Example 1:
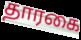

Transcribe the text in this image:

தாரகை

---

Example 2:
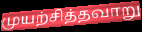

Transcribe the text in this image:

முயற்சித்தவாறு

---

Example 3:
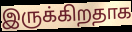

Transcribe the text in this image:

இருக்கிறதாக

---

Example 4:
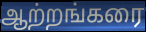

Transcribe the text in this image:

ஆற்றங்கரை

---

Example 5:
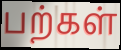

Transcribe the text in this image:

பற்கள்